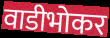
वाडीभोकर